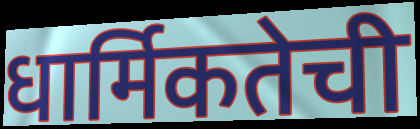
धार्मिकतेची